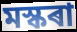
মস্কৰা